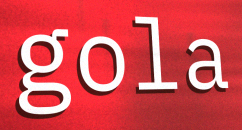
gola